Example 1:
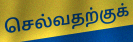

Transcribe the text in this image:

செல்வதற்குக்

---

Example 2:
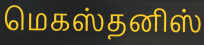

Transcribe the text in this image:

மெகஸ்தனிஸ்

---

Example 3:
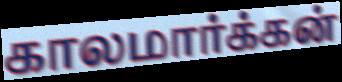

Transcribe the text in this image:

காலமார்க்கன்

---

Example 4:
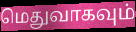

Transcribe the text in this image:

மெதுவாகவும்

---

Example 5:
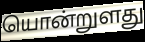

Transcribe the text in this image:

யொன்றுளது